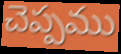
చెప్పము